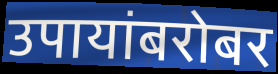
उपायांबरोबर